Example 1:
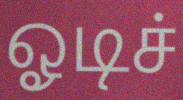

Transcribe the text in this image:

ஓடிச்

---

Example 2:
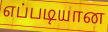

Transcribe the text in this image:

எப்படியான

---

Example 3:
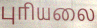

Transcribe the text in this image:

புரியலை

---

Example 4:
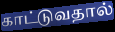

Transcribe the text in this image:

காட்டுவதால்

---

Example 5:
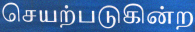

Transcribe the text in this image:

செயற்படுகின்ற